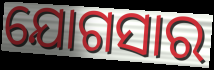
ଯୋଗସାର